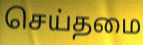
செய்தமை